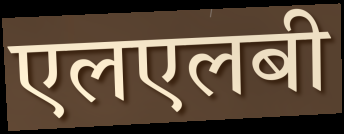
एलएलबी